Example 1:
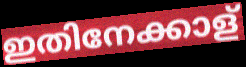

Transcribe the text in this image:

ഇതിനേക്കാള്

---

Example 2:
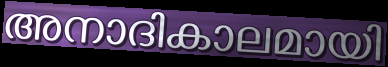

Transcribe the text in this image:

അനാദികാലമായി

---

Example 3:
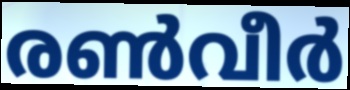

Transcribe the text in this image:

രൺവീർ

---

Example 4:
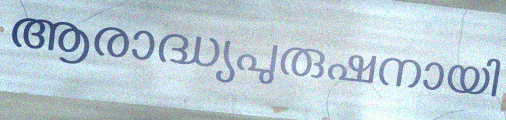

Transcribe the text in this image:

ആരാദ്ധ്യപുരുഷനായി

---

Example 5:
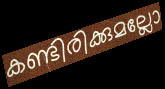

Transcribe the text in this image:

കണ്ടിരിക്കുമല്ലോ